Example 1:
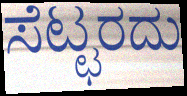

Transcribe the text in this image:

ಸೆಟ್ಟರದು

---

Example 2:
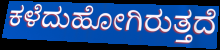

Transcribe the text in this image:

ಕಳೆದುಹೋಗಿರುತ್ತದೆ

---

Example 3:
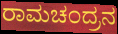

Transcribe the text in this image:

ರಾಮಚಂದ್ರನ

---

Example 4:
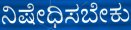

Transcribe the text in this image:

ನಿಷೇಧಿಸಬೇಕು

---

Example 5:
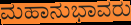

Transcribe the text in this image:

ಮಹಾನುಭಾವರು